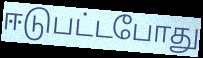
ஈடுபட்டபோது